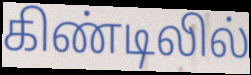
கிண்டிலில்